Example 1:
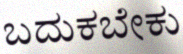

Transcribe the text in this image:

ಬದುಕಬೇಕು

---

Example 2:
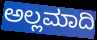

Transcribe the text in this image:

ಅಲ್ಲಮಾದಿ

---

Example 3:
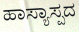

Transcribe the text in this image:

ಹಾಸ್ಯಾಸ್ಪದ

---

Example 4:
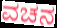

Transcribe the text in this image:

ವಚನ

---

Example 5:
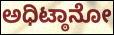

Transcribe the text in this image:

ಅಧಿಟ್ಠಾನೋ